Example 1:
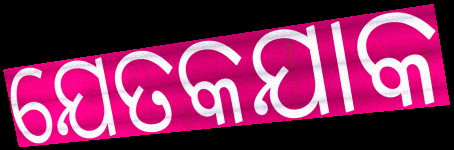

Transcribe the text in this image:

ଯେତକଯାକ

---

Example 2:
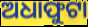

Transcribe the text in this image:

ଅଧାଫୁଟା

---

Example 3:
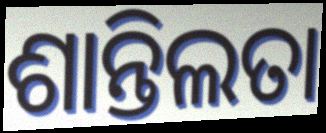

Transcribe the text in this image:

ଶାନ୍ତିଲତା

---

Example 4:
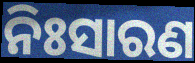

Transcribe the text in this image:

ନିଃସାରଣ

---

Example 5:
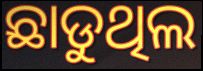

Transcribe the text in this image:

ଛାଡୁଥିଲ